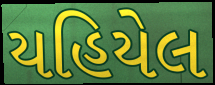
યહિયેલ